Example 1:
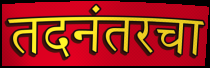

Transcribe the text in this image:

तदनंतरचा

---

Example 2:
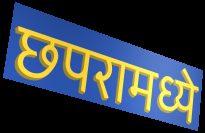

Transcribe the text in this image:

छपरामध्ये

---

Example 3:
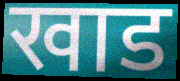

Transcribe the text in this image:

खाड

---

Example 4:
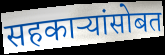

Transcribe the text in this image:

सहकाऱ्यांसोबत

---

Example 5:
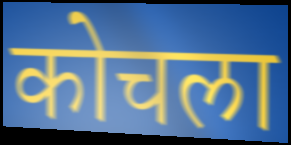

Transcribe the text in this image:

कोचला